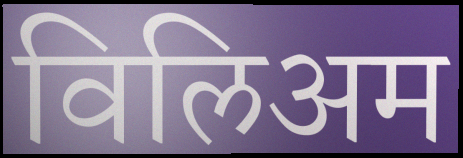
विलिअम